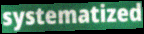
systematized